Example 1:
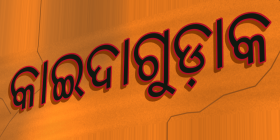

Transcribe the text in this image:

କାଇଦାଗୁଡ଼ାକ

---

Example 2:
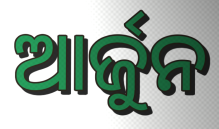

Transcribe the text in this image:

ଆର୍ଜୁନ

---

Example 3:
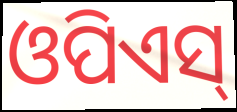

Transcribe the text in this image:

ଓପିଏସ୍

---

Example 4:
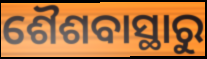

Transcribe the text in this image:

ଶୈଶବାସ୍ଥାରୁ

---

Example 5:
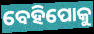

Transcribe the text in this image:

ବେହିପୋକୁ